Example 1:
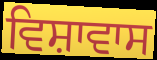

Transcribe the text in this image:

ਵਿਸ਼ਾਵਾਸ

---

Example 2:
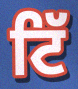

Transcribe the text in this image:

ਟਿੱ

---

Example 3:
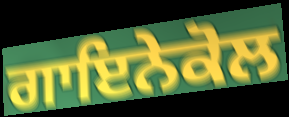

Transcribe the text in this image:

ਗਾਇਨੇਕੋਲ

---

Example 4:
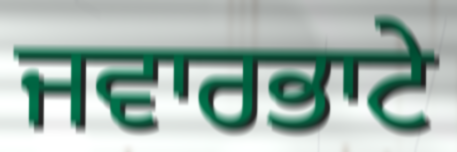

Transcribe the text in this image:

ਜਵਾਰਭਾਟੇ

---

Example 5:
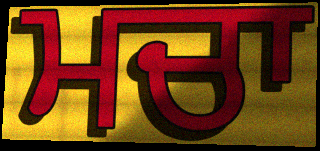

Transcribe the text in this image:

ਮਚਾ